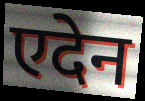
एदेन